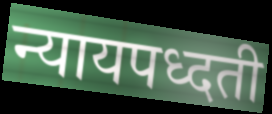
न्यायपध्दती